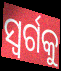
ସ୍ୱର୍ଗକୁ